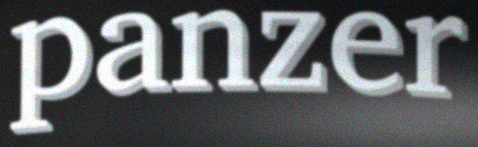
panzer